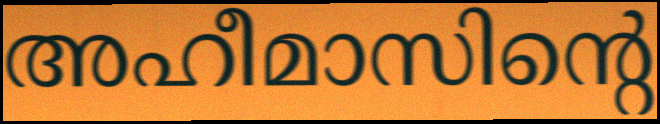
അഹീമാസിന്റെ